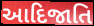
આદિજાતિ